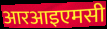
आरआइएमसी